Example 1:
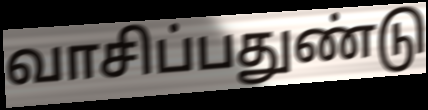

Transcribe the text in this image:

வாசிப்பதுண்டு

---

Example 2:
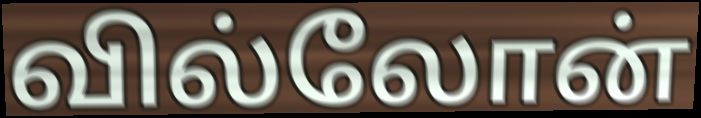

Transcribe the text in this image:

வில்லோன்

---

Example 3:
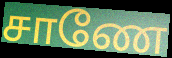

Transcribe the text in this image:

சாணே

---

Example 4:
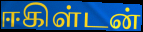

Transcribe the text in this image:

ஈகிள்டன்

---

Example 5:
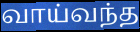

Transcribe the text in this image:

வாய்வந்த